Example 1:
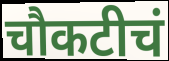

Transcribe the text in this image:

चौकटीचं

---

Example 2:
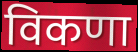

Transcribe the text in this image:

विकणा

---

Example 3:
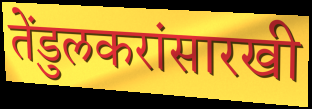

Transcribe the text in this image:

तेंडुलकरांसारखी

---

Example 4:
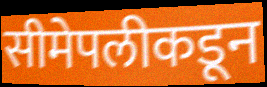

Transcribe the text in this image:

सीमेपलीकडून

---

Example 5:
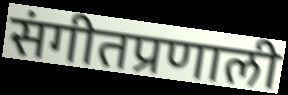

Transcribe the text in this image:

संगीतप्रणाली